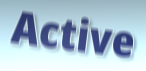
Active